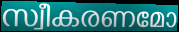
സ്വീകരണമോ